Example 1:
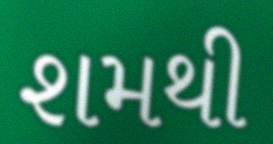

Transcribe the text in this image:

શમથી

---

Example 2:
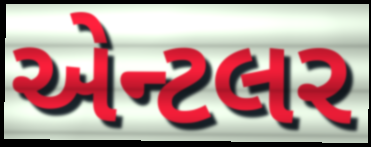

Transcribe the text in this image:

એન્ટલર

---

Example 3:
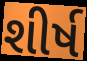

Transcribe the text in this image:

શીર્ષ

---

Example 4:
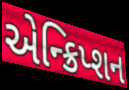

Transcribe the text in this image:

એન્ક્રિપ્શન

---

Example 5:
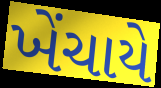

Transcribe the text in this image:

ખેંચાયે